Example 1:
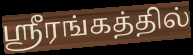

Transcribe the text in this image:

ஸ்ரீரங்கத்தில்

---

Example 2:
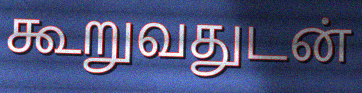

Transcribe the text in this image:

கூறுவதுடன்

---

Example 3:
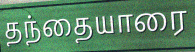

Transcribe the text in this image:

தந்தையாரை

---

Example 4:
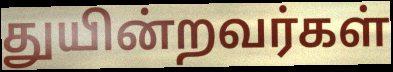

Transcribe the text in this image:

துயின்றவர்கள்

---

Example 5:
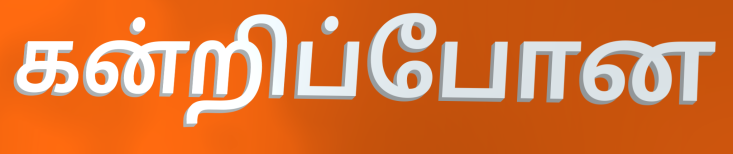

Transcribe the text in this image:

கன்றிப்போன